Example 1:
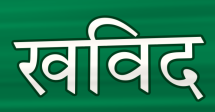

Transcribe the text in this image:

खविद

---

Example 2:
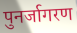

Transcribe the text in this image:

पुनर्जागरण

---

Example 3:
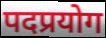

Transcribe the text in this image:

पदप्रयोग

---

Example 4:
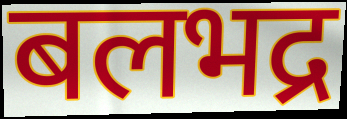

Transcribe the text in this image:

बलभद्र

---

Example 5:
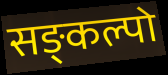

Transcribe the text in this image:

सङ्कल्पो